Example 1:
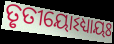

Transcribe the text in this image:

ତୃତୀୟୋଽଧ୍ୟାୟଃ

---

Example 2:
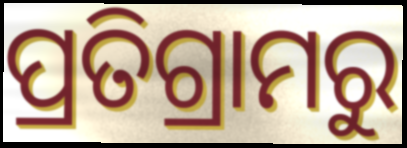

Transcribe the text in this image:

ପ୍ରତିଗ୍ରାମରୁ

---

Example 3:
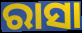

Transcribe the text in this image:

ରାସା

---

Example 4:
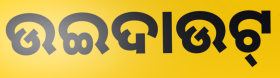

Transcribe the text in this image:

ଉଇଦାଉଟ୍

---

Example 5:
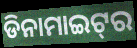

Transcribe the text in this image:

ଡିନାମାଇଟ୍‌ର